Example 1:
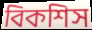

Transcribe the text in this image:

বিকশিস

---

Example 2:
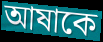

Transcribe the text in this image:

আষাকে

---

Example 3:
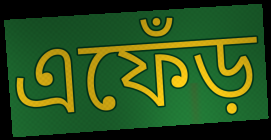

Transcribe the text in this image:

এফেঁড়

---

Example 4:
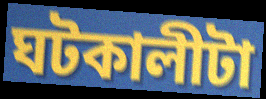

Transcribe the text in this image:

ঘটকালীটা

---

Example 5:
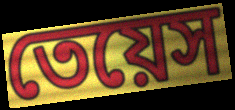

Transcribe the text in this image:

তেয়েস